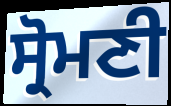
ਸ੍ਰੋਮਣੀ